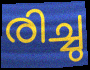
രിച്ചു